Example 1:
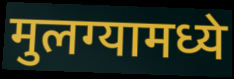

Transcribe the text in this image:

मुलग्यामध्ये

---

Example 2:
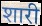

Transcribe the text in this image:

शारी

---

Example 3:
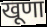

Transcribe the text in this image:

खूणा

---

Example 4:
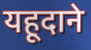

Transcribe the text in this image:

यहूदाने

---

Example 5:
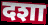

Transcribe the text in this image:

दशा